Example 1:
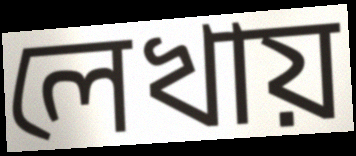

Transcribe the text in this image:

লেখায়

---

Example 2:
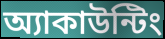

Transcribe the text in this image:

অ্যাকাউন্টিং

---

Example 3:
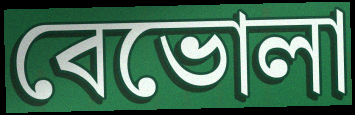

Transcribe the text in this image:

বেভোলা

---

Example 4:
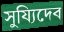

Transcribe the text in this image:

সুয্যিদেব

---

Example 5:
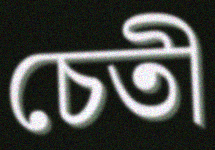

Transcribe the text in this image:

চেতী